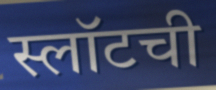
स्लॉटची